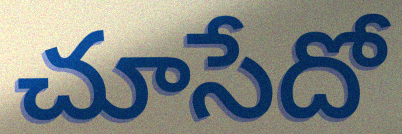
చూసేదో